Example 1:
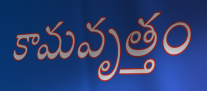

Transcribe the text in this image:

కామవృత్తం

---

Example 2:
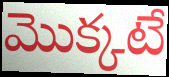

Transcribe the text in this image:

మొక్కటే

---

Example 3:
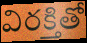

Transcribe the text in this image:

విరక్తితో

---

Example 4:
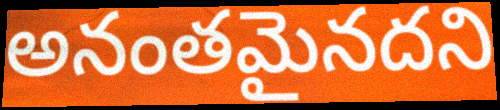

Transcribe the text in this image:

అనంతమైనదని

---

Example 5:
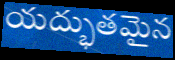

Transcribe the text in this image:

యద్భుతమైన